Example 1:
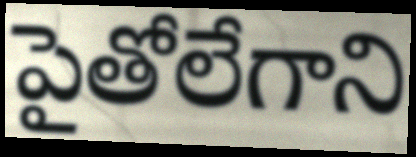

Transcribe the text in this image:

పైతోలేగాని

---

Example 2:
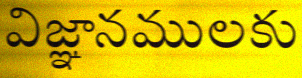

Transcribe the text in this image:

విజ్ఞానములకు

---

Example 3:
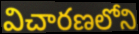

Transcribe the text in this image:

విచారణలోని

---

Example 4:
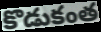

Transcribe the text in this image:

కొడుకంత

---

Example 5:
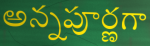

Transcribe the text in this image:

అన్నపూర్ణగా